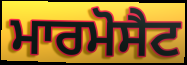
ਮਾਰਮੋਸੈਟ